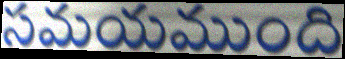
సమయముంది